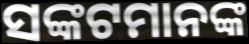
ସଙ୍କଟମାନଙ୍କ